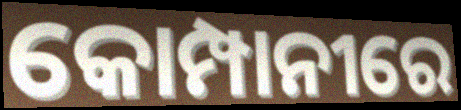
କୋମ୍ପାନୀରେ